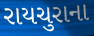
રાયચુરાના